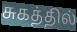
சுகத்தில்